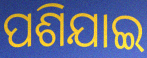
ପଶିଯାଇ